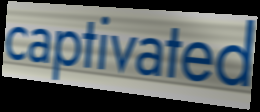
captivated